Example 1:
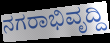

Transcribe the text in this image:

ನಗರಾಭಿವೃದ್ದಿ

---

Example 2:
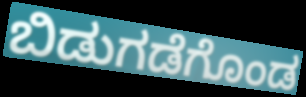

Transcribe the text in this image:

ಬಿಡುಗಡೆಗೊಂಡ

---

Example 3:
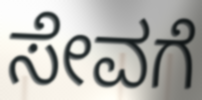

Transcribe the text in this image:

ಸೇವಗೆ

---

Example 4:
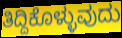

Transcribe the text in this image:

ತಿದ್ದಿಕೊಳ್ಳುವುದು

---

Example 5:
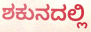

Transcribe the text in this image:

ಶಕುನದಲ್ಲಿ